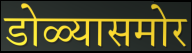
डोळ्यासमोर